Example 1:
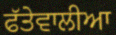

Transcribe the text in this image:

ਫੱਤੇਵਾਲੀਆ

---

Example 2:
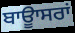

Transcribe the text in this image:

ਬਾਊਾਸਰਾਂ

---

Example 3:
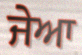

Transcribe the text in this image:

ਜੇਆ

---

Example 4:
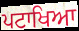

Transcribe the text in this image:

ਪਟਾਖਿਆ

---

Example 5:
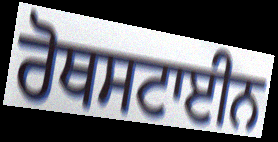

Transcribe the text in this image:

ਰੋਥਸਟਾਈਨ